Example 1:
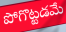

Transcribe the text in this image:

పోగొట్టడమే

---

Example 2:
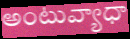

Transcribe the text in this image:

అంటువ్యాధా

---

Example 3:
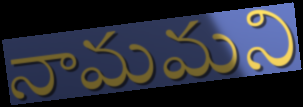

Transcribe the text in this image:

నామమని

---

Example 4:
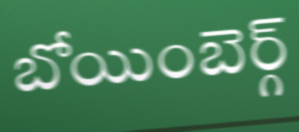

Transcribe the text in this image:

బోయింబెర్గ్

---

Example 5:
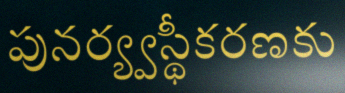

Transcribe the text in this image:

పునర్య్వస్థీకరణకు